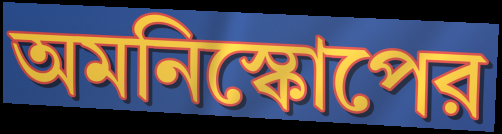
অমনিস্কোপের